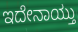
ಇದೇನಾಯ್ತು